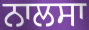
ਨਾਲਸਾ